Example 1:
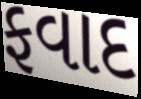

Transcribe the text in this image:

ફવાદ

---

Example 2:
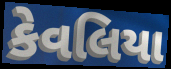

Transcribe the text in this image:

કેવલિયા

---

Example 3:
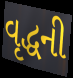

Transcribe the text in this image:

વૃદ્ધની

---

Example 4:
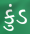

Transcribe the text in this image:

કુંડ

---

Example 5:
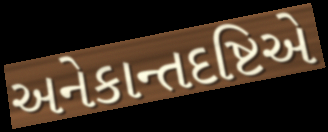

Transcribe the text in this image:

અનેકાન્તદષ્ટિએ